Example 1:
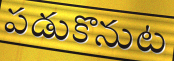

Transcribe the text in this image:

పడుకొనుట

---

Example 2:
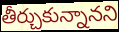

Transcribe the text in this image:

తీర్చుకున్నానని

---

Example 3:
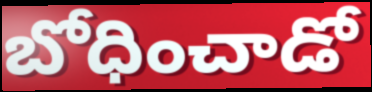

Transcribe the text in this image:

బోధించాడో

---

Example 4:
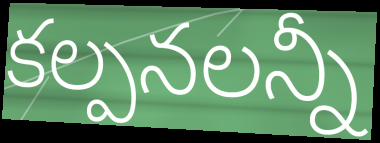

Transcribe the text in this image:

కల్పనలన్నీ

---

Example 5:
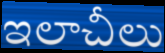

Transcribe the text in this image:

ఇలాచీలు